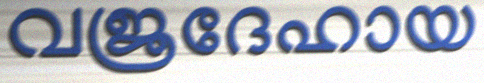
വജ്രദേഹായ